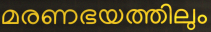
മരണഭയത്തിലും